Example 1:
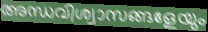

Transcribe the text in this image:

അന്ധവിശ്വാസങ്ങളേയും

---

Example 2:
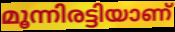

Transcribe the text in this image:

മൂന്നിരട്ടിയാണ്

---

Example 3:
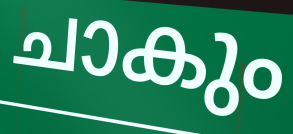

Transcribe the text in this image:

ചാകും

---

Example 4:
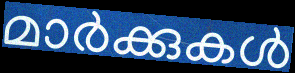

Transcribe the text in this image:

മാർക്കുകൾ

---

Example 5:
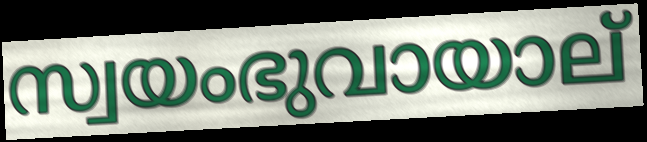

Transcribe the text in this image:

സ്വയംഭുവായാല്